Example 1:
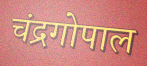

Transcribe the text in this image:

चंद्रगोपाल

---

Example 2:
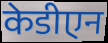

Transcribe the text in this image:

केडीएन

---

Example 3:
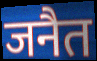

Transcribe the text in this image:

जनैत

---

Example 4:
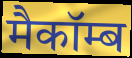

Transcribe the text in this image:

मैकॉम्ब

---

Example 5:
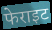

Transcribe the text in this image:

फेराइट